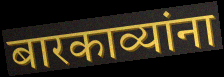
बारकाव्यांना